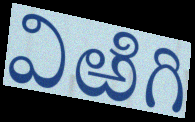
విఱిగి